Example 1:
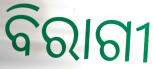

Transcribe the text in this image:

ବିରାଗୀ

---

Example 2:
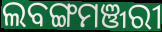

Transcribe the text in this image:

ଲବଙ୍ଗମଞ୍ଜରୀ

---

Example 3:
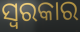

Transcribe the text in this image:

ସ୍ୱରକାର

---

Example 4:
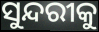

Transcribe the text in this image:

ସୁନ୍ଦରୀକୁ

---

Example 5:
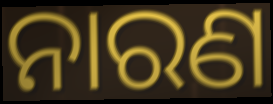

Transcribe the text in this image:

ନାରଣ